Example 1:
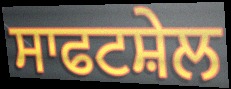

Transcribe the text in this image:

ਸਾਫਟਸ਼ੇਲ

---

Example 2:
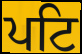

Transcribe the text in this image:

ਪਟਿ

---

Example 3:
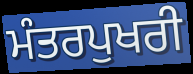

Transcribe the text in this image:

ਮੰਤਰਪੁਖਰੀ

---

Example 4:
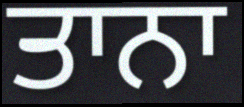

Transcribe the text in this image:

ਤਾਨਾ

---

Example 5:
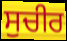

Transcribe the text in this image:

ਸੁਚੀਰ